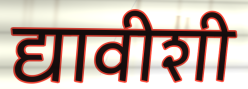
द्यावीशी